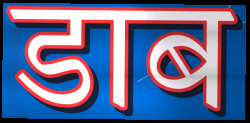
डाब